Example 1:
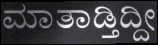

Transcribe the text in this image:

ಮಾತಾಡ್ತಿದ್ದೀ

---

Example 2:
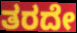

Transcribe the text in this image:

ತರದೇ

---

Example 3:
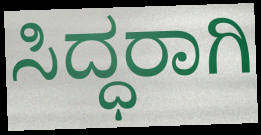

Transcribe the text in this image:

ಸಿದ್ಧರಾಗಿ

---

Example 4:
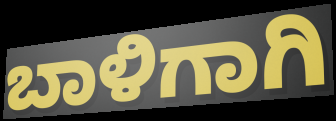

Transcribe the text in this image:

ಬಾಳಿಗಾಗಿ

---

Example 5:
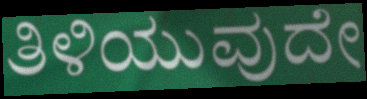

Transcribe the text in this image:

ತಿಳಿಯುವುದೇ